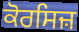
ਕੋਰਸਿਜ਼